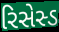
રિસેસ્ડ